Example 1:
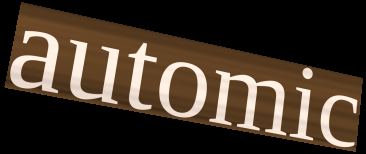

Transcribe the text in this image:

automic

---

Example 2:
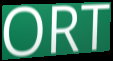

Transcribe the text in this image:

ORT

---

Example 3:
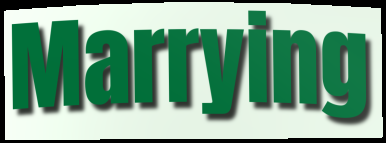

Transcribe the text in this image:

Marrying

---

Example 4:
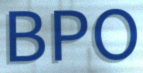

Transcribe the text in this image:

BPO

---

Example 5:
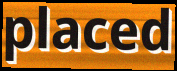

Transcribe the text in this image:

placed